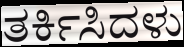
ತರ್ಕಿಸಿದಳು